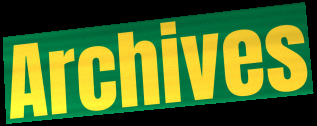
Archives